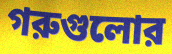
গরুগুলোর